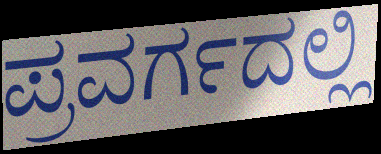
ಪ್ರವರ್ಗದಲ್ಲಿ